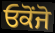
ਓਕੋਂਜੋ